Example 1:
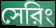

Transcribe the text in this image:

সেরিং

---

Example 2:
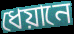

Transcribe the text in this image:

ধেয়ানে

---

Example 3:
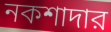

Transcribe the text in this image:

নকশাদার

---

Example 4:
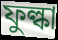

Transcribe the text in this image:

ফুল্কা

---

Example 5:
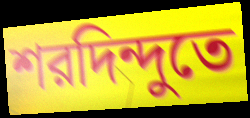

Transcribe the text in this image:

শরদিন্দুতে